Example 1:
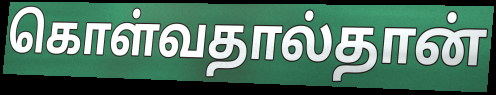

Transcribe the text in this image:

கொள்வதால்தான்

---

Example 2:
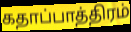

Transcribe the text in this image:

கதாப்பாத்திரம்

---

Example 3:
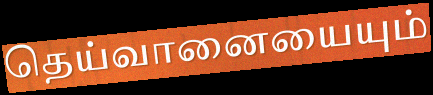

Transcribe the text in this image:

தெய்வானையையும்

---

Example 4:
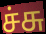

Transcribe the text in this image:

ச்சு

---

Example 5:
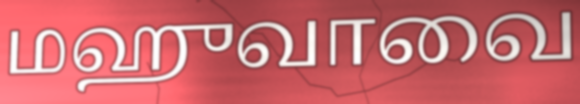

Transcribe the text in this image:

மஹுவாவை